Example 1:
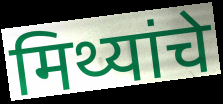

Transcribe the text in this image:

मिथ्यांचे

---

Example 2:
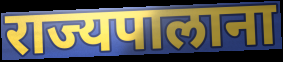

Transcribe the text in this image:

राज्यपालाना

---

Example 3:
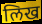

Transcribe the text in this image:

लिख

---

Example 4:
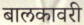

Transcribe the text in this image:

बालकावरी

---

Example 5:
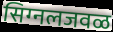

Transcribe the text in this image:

सिग्नलजवळ